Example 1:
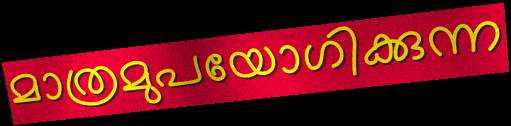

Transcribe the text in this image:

മാത്രമുപയോഗിക്കുന്ന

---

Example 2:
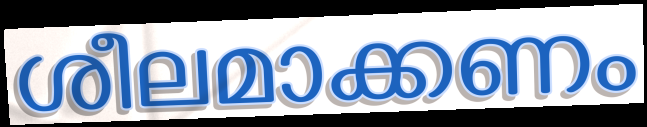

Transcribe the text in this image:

ശീലമാക്കണം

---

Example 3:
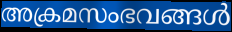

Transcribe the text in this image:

അക്രമസംഭവങ്ങൾ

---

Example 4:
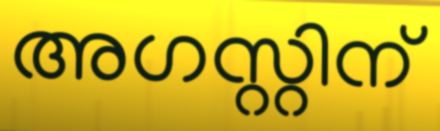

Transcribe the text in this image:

അഗസ്റ്റിന്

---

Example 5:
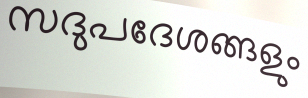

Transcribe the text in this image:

സദുപദേശങ്ങളും